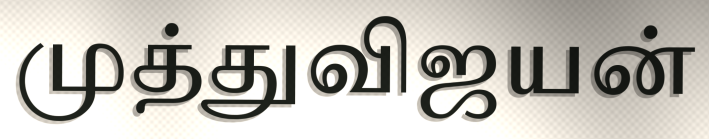
முத்துவிஜயன்